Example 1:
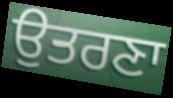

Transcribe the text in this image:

ਉਤਰਣਾ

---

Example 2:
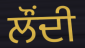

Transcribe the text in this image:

ਲੌਂਦੀ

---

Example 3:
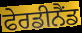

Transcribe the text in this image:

ਫੇਰਡੀਨੈਂਡ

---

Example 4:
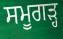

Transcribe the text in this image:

ਸਮੂਗੜ੍ਹ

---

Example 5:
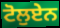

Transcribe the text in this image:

ਟੋਲੁਏਨ